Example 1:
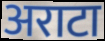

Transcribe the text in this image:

अराटा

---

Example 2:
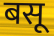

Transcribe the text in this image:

बसू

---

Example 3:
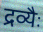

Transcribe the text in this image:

द्रव्यैः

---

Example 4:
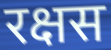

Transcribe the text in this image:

रक्षस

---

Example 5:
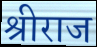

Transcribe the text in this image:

श्रीराज